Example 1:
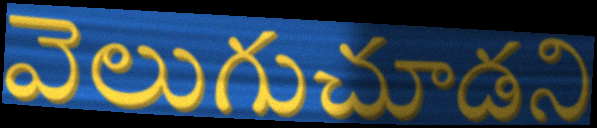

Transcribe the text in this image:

వెలుగుచూడని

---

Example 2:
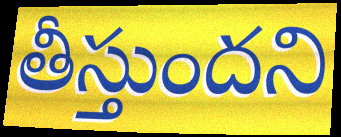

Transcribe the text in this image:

తీస్తుందని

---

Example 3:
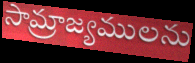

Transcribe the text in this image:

సామ్రాజ్యములను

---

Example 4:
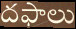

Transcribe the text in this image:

దఫాలు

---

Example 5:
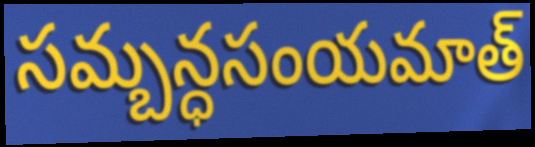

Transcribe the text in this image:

సమ్బన్ధసంయమాత్